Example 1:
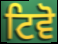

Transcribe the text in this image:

ਟਿਵੋ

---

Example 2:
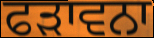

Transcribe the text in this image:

ਫੜਾਵਨਾ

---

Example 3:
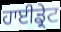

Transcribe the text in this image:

ਹਾਈਡ੍ਰੇਟ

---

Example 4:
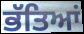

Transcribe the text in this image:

ਭੱਤਿਆਂ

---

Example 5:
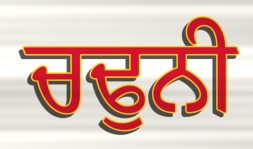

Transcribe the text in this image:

ਚਢੁਨੀ